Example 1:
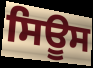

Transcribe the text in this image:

ਸਿਊਸ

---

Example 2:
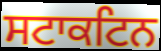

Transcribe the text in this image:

ਸਟਾਕਟਿਨ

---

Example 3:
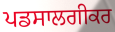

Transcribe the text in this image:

ਪਡਸਾਲਗੀਕਰ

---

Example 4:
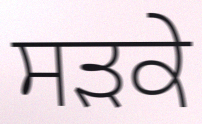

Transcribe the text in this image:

ਸਡ਼ਕੇ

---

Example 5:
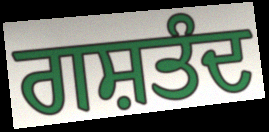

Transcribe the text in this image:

ਗਸ਼ਤੰਦ